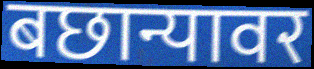
बछान्यावर